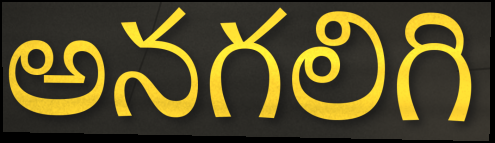
అనగలిగి